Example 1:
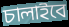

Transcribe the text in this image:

চালাইবে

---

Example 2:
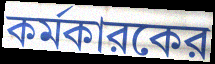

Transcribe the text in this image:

কর্মকারকের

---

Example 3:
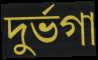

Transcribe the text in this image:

দুর্ভগা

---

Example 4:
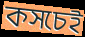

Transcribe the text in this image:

কসচেই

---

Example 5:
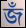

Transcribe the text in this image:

জঁ